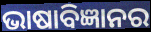
ଭାଷାବିଜ୍ଞାନର